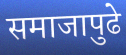
समाजापुढे